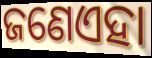
ଜଣେଏହା